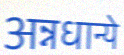
अन्नधान्ये